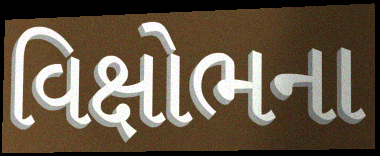
વિક્ષોભના